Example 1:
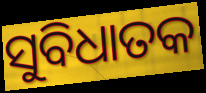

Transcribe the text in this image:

ସୁବିଧାତକ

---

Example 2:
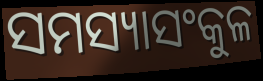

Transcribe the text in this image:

ସମସ୍ୟାସଂକୁଳ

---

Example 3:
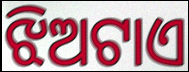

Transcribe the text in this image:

ଝିଅଟାଏ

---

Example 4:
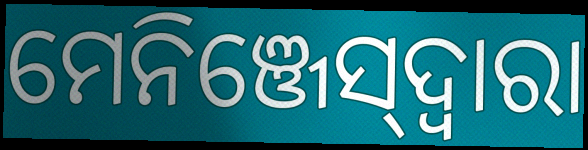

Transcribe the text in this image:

ମେନିଞ୍ଜେସ୍‌ଦ୍ୱାରା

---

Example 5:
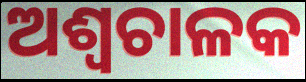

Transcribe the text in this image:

ଅଶ୍ୱଚାଳକ